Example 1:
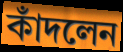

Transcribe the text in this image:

কাঁদলেন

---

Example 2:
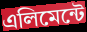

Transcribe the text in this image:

এলিমেন্টে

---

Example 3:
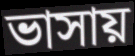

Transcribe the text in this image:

ভাসায়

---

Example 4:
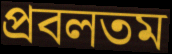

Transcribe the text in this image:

প্রবলতম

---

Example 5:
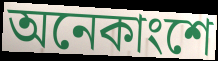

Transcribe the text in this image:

অনেকাংশে